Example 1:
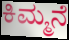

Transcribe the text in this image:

ಕಿಮ್ಮನೆ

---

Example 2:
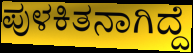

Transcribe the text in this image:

ಪುಳಕಿತನಾಗಿದ್ದೆ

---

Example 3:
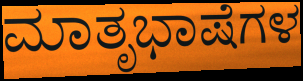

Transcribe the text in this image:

ಮಾತೃಭಾಷೆಗಳ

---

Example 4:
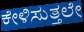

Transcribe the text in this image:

ಕೇಳಿಸುತ್ತಲೇ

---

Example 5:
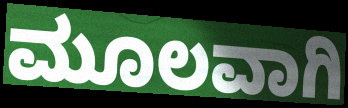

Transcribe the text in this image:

ಮೂಲವಾಗಿ